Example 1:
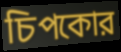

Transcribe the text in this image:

চিপকোর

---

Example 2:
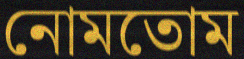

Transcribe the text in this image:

নোমতোম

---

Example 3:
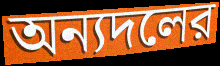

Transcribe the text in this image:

অন্যদলের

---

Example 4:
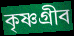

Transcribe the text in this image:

কৃষ্ণগ্রীব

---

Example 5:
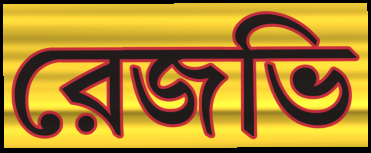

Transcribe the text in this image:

রেজভি